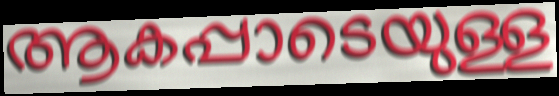
ആകപ്പാടെയുള്ള